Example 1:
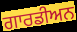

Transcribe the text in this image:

ਗਾਰਡੀਅਨ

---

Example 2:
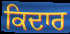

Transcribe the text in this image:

ਕਿਦਾਰ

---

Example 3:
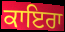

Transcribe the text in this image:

ਕਾਇਰਾ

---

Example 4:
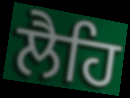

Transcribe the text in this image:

ਲੈਹਿ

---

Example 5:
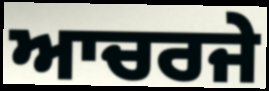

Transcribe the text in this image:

ਆਚਰਜੇ